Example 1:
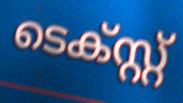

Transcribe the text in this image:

ടെക്സ്റ്റ്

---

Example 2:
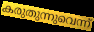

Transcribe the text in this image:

കരുതുന്നുവെന്ന്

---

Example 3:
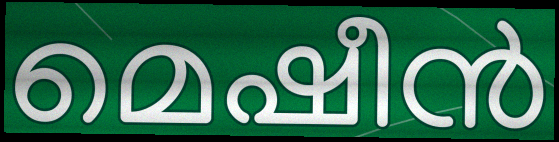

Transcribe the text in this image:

മെഷീൻ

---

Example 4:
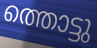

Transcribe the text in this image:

ത്തൊട്ടു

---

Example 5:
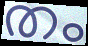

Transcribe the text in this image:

തം